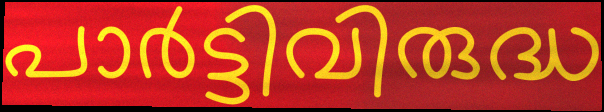
പാർട്ടിവിരുദ്ധ